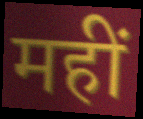
महीं